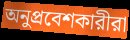
অনুপ্রবেশকারীরা